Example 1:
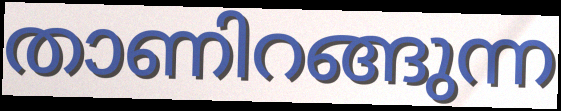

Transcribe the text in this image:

താണിറങ്ങുന്ന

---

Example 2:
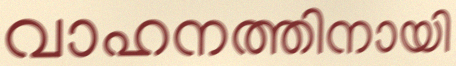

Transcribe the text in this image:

വാഹനത്തിനായി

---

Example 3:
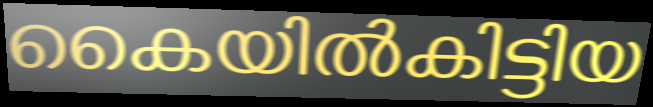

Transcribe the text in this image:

കൈയിൽകിട്ടിയ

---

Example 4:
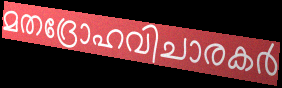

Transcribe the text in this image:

മതദ്രോഹവിചാരകർ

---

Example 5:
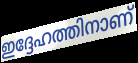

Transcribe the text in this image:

ഇദ്ദേഹത്തിനാണ്